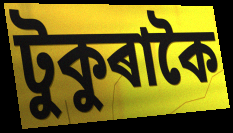
টুকুৰাকৈ